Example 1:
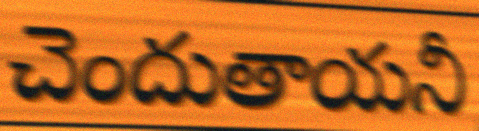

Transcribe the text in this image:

చెందుతాయనీ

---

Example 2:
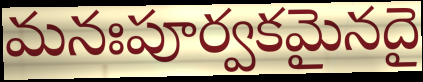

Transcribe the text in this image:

మనఃపూర్వకమైనదై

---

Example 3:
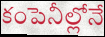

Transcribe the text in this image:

కంపెనీల్లోనే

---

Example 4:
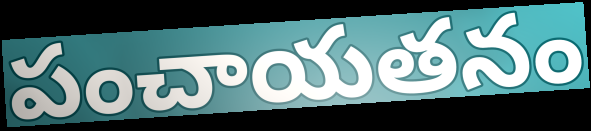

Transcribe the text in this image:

పంచాయతనం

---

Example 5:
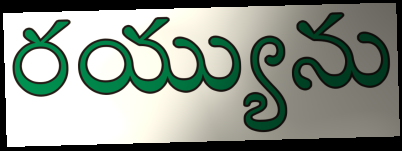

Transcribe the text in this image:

రయ్యును